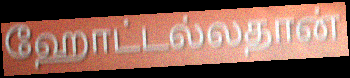
ஹோட்டல்லதான்